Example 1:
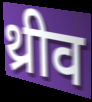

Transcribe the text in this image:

थ्रीव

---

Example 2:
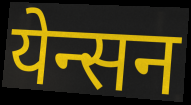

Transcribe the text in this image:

येन्सन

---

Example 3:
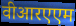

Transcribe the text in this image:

वीआरएएम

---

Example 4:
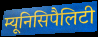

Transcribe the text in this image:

म्यूनिसिपैलिटी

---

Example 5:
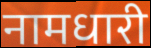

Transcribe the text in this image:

नामधारी